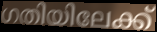
ഗതിയിലേക്ക്